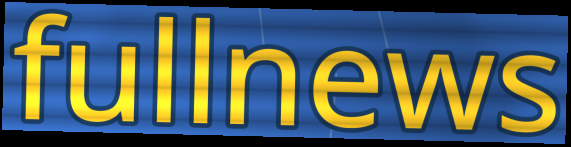
fullnews